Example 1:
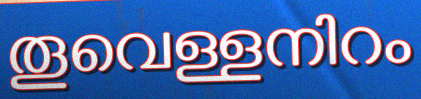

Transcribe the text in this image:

തൂവെള്ളനിറം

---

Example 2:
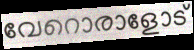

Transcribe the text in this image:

വേറൊരാളോട്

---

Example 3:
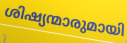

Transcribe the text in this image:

ശിഷ്യന്മാരുമായി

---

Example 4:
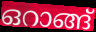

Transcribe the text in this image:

ഒറാങ്ങ്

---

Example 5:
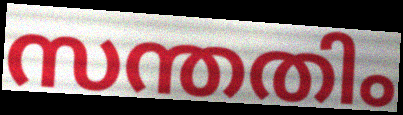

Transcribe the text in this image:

സന്തതിം